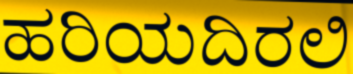
ಹರಿಯದಿರಲಿ